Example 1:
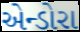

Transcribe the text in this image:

એન્ડોરા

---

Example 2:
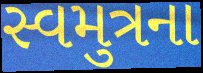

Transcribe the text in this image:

સ્વમુત્રના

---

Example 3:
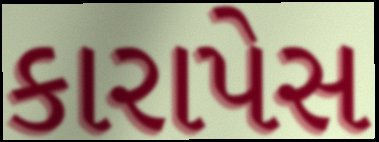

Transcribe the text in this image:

કારાપેસ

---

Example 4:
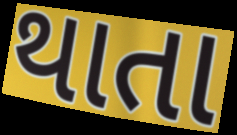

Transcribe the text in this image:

થાતા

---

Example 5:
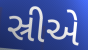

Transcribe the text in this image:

સ્રીએ